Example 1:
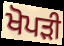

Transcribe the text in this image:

ਖੋਪੜੀ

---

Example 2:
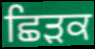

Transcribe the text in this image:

ਛਿੜਕ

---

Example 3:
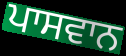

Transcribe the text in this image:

ਪਾਸਵਾਨ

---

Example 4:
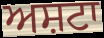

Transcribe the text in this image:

ਅਸ਼ਟਾ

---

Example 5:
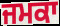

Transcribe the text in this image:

ਜਮਕਾ